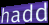
hadd